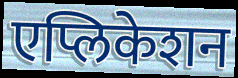
एप्लिकेशन